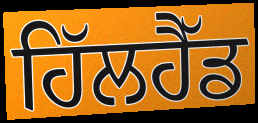
ਹਿੱਲਹੈੱਡ